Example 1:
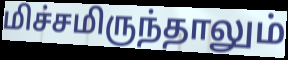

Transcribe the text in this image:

மிச்சமிருந்தாலும்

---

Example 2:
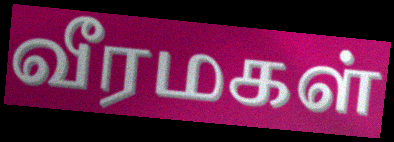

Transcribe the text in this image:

வீரமகள்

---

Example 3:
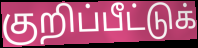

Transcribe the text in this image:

குறிப்பீட்டுக்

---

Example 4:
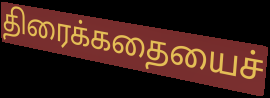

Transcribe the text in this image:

திரைக்கதையைச்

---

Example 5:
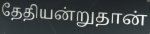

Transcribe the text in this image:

தேதியன்றுதான்